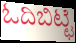
ಓದಿಬಿಟ್ಟೆ